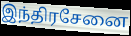
இந்திரசேனை